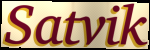
Satvik